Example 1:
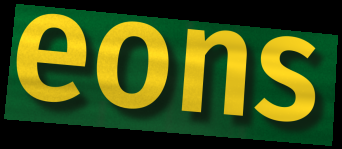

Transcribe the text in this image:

eons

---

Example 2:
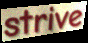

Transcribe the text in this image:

strive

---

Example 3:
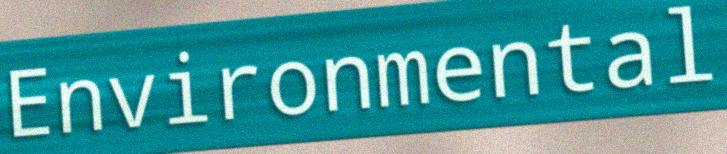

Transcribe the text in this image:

Environmental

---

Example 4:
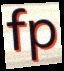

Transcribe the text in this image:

fp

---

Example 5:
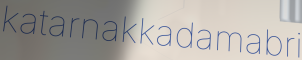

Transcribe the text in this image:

katarnakkadamabri